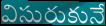
విసురుకునే